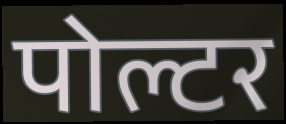
पोल्टर